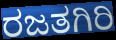
ರಜತಗಿರಿ